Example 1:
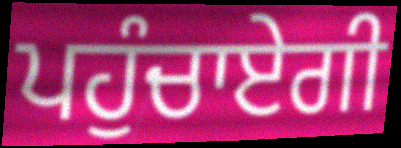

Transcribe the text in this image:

ਪਹੁੰਚਾਏਗੀ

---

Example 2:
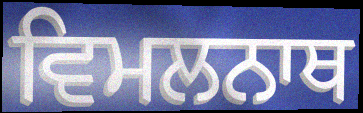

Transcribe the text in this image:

ਵਿਮਲਨਾਥ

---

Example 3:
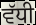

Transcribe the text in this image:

ਵੱਧੀ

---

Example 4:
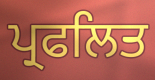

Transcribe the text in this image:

ਪ੍ਰਫਲਿਤ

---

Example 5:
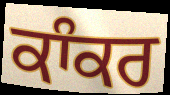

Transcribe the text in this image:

ਕਾੰਕਰ